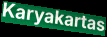
Karyakartas